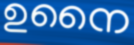
ഉനൈ